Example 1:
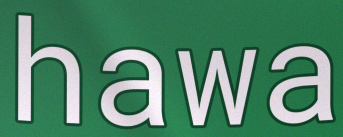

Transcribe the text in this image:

hawa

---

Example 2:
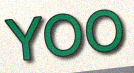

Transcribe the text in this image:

YOO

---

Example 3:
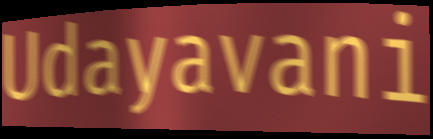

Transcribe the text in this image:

Udayavani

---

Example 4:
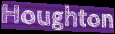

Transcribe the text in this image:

Houghton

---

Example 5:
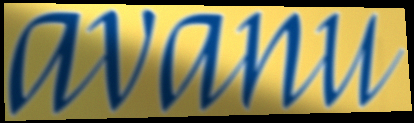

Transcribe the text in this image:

avanu